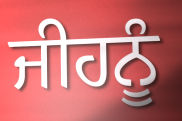
ਜੀਹਨੂੰ